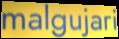
malgujari